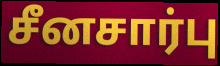
சீனசார்பு